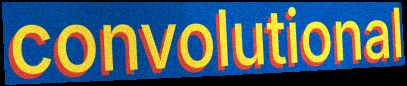
convolutional